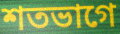
শতভাগে